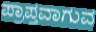
ಪ್ರಾಪ್ತವಾಗುವ